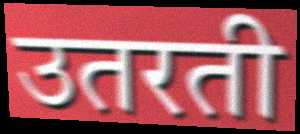
उतरती